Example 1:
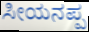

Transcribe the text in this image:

ಸೀಯನಪ್ಪ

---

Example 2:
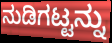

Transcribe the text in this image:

ನುಡಿಗಟ್ಟನ್ನು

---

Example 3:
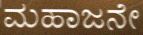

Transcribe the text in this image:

ಮಹಾಜನೇ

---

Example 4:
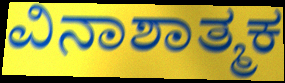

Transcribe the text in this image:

ವಿನಾಶಾತ್ಮಕ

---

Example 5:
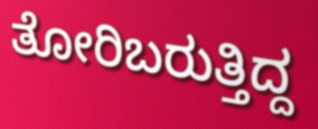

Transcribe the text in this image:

ತೋರಿಬರುತ್ತಿದ್ದ